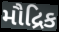
મૌદ્રિક